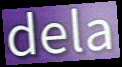
dela